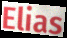
Elias